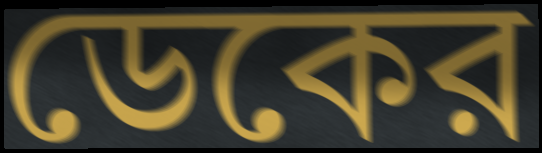
ডেকের